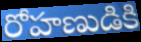
రోహణుడికి